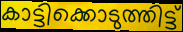
കാട്ടിക്കൊടുത്തിട്ട്